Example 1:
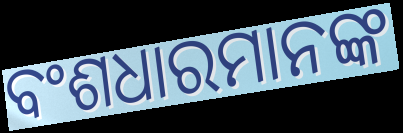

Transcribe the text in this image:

ବଂଶଧାରମାନଙ୍କ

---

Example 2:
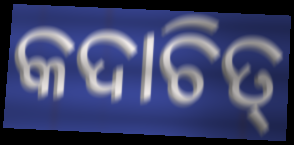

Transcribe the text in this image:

କଦାଚିତ୍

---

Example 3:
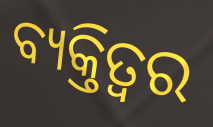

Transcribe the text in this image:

ବ୍ୟକ୍ତିତ୍ବର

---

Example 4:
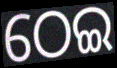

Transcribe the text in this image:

ଠେଇ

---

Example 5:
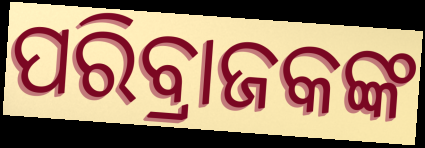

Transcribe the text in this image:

ପରିବ୍ରାଜକଙ୍କ